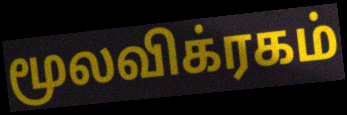
மூலவிக்ரகம்